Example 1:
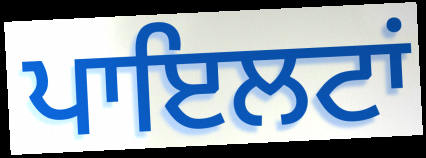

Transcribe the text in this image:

ਪਾਇਲਟਾਂ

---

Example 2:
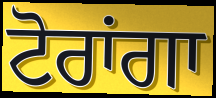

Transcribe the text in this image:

ਟੋਰਾਂਗਾ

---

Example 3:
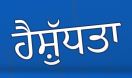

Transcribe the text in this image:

ਹੈਸ਼ੁੱਧਤਾ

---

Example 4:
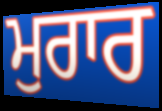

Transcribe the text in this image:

ਮੁਰਾਰ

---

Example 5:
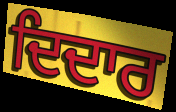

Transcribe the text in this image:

ਦਿਦਾਰ